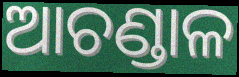
ଆଚଣ୍ଡାଳ